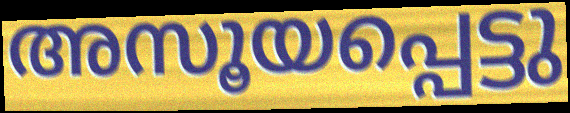
അസൂയപ്പെട്ടു